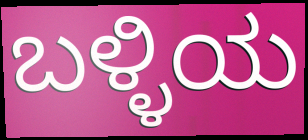
ಬಳ್ಳಿಯ